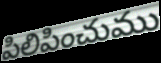
పిలిపించుము